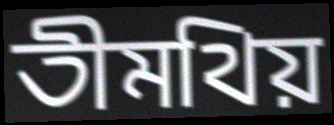
তীমথিয়